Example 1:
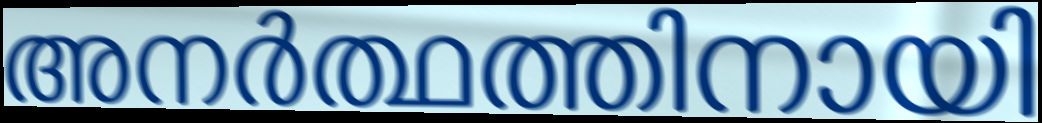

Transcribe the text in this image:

അനർത്ഥത്തിനായി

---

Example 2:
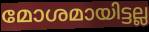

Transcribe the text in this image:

മോശമായിട്ടല്ല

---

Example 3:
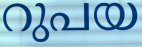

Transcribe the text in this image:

റുപയ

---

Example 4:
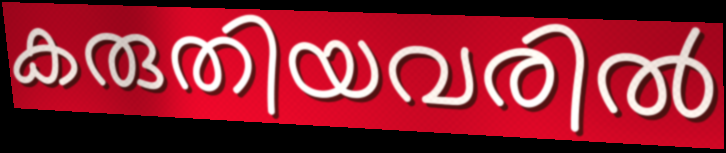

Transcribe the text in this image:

കരുതിയവരിൽ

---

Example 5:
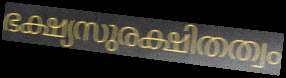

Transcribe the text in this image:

ഭക്ഷ്യസുരക്ഷിതത്വം